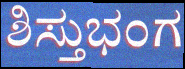
ಶಿಸ್ತುಭಂಗ